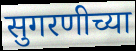
सुगरणीच्या